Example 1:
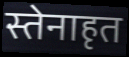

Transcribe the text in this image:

स्तेनाहृत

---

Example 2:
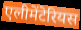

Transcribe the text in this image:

एलीमेंटेरियस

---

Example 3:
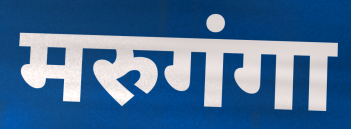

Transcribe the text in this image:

मरुगंगा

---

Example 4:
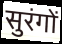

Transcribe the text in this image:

सुरंगों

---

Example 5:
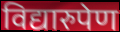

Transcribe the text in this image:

विद्यारुपेण